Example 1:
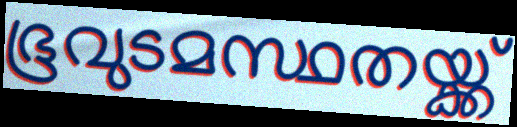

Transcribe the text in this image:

ഭൂവുടമസ്ഥതയ്ക്ക്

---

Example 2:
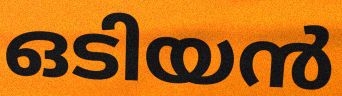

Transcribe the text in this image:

ഒടിയൻ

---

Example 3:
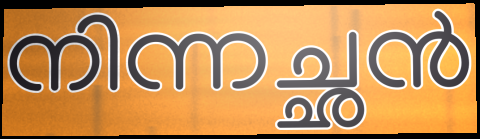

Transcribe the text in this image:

നിന്നച്ഛൻ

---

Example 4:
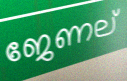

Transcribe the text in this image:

ജേണല്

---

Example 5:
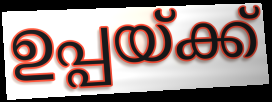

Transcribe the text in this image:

ഉപ്പയ്ക്ക്